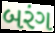
બરંગ